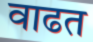
वाढत